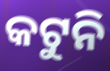
କଟୁନି